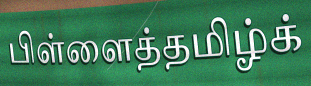
பிள்ளைத்தமிழ்க்